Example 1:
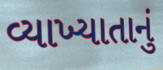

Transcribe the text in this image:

વ્યાખ્યાતાનું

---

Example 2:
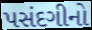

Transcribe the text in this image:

પસંદગીનો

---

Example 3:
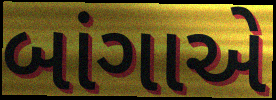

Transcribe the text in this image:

બાંગાએ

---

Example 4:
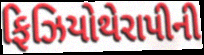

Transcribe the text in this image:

ફિઝિયોથેરાપીની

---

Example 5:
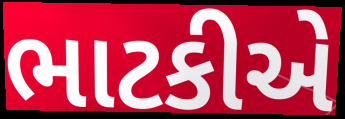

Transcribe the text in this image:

ભાટકીએ